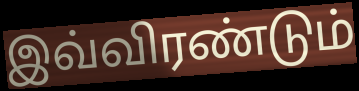
இவ்விரண்டும்